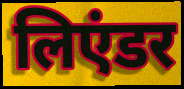
लिएंडर